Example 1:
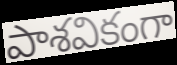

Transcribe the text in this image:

పాశవికంగా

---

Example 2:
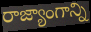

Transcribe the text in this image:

రాజ్యాంగాన్ని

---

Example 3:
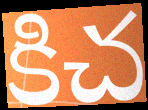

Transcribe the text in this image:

కిచ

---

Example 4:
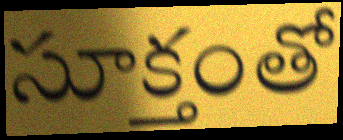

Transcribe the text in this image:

సూక్తంతో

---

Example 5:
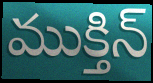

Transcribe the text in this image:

ముక్తిన్